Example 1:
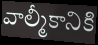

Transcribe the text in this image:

వాల్మీకానికి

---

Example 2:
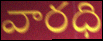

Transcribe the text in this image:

వారధి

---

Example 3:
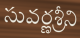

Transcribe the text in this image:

సువర్ణశ్రీని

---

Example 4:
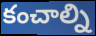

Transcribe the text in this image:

కంచాల్ని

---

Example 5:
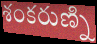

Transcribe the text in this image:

శంకరుణ్ని